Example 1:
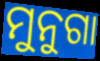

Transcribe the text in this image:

ମୁନୁଗା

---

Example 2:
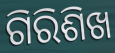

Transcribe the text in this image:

ଗିରିଶିଖ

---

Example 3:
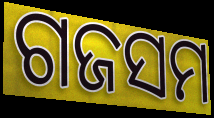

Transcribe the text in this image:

ଗଜସମ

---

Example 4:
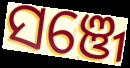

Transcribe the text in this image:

ସଞ୍ଜେ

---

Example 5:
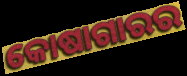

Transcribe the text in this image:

କୋଷାଗାରର